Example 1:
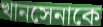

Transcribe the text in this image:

খানসেনাকে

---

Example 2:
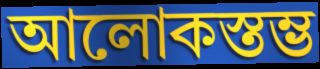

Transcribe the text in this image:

আলোকস্তম্ভ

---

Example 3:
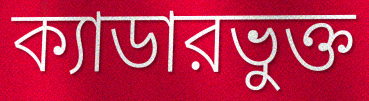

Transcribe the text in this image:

ক্যাডারভুক্ত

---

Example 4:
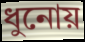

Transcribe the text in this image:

ধুনোয়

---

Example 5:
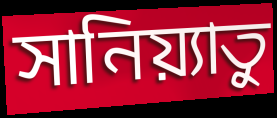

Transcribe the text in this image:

সানিয়্যাতু